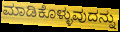
ಮಾಡಿಕೊಳ್ಳುವುದನ್ನು